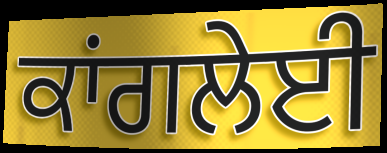
ਕਾਂਗਲੇਈ